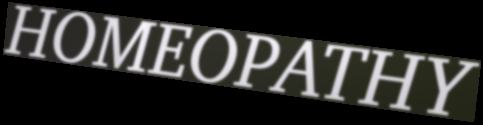
HOMEOPATHY